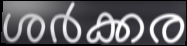
ശർക്കര